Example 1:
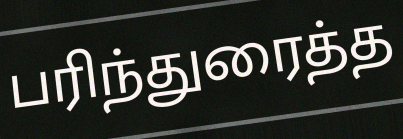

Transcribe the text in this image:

பரிந்துரைத்த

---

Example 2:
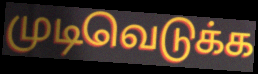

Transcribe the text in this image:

முடிவெடுக்க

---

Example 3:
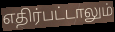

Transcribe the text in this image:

எதிர்பட்டாலும்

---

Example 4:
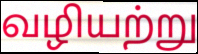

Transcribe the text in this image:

வழியற்று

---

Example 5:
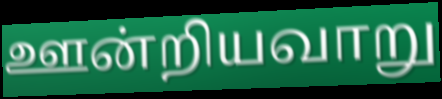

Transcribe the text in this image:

ஊன்றியவாறு